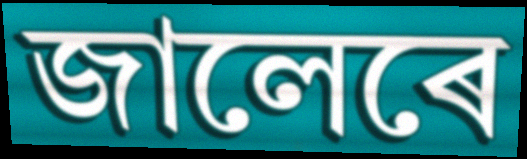
জালেৰে